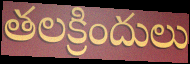
తలక్రిందులు